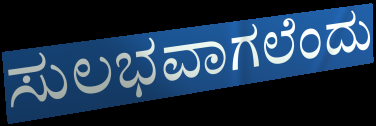
ಸುಲಭವಾಗಲೆಂದು